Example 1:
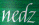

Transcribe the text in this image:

nedz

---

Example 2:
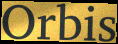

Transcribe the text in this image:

Orbis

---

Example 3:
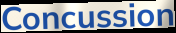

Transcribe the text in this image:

Concussion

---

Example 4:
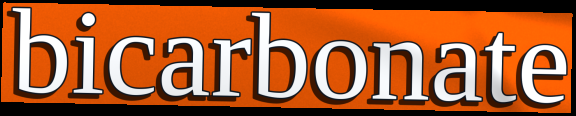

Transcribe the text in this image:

bicarbonate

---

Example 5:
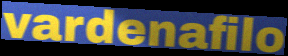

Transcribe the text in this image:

vardenafilo